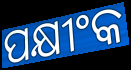
ପକ୍ଷୀଂକ